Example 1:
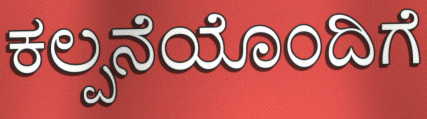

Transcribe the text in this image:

ಕಲ್ಪನೆಯೊಂದಿಗೆ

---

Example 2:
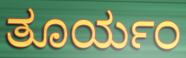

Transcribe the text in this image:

ತೂರ್ಯಂ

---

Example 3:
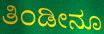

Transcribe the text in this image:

ತಿಂಡೀನೂ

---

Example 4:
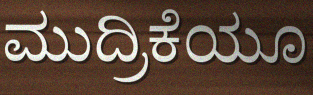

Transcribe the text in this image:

ಮುದ್ರಿಕೆಯೂ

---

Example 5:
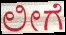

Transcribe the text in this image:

ಲೀಗೆ